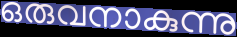
ഒരുവനാകുന്നു